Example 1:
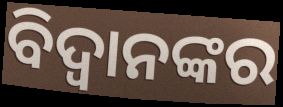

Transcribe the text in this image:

ବିଦ୍ୱାନଙ୍କର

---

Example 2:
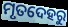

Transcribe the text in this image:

ମୃତଦେହରୁ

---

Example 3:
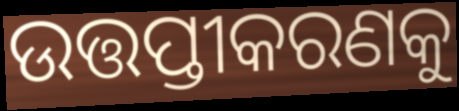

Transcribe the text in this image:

ଉତ୍ତପ୍ତୀକରଣକୁ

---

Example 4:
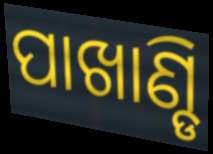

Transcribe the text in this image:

ପାଖାଣ୍ଡି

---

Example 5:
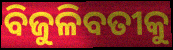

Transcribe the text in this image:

ବିଜୁଳିବତୀକୁ